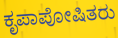
ಕೃಪಾಪೋಷಿತರು